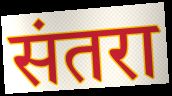
संतरा